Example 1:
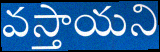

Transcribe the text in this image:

వస్తాయని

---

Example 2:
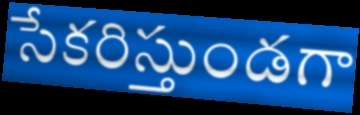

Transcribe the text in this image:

సేకరిస్తుండగా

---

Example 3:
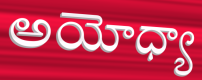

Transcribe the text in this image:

అయోధ్యా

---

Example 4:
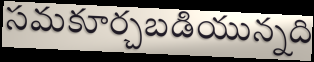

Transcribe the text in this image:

సమకూర్చబడియున్నది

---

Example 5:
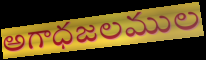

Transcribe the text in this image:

అగాధజలముల